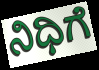
ನಿಧಿಗೆ